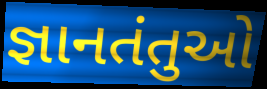
જ્ઞાનતંતુઓ